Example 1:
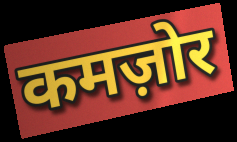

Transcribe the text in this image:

कमज़ोर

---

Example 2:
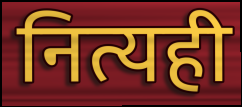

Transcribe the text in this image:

नित्यही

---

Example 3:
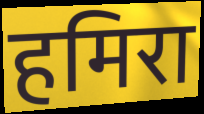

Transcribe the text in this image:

हमिरा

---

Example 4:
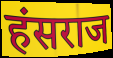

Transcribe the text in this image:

हंसराज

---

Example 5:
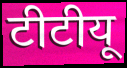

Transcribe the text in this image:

टीटीयू